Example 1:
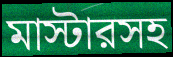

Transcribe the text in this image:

মাস্টারসহ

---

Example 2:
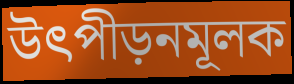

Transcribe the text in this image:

উৎপীড়নমূলক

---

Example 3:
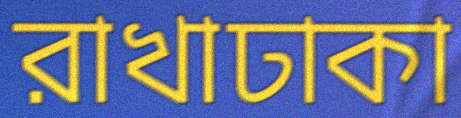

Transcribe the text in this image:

রাখাঢাকা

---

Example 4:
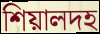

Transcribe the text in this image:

শিয়ালদহ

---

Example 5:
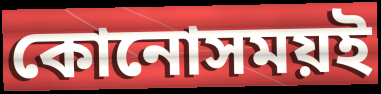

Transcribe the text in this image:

কোনোসময়ই